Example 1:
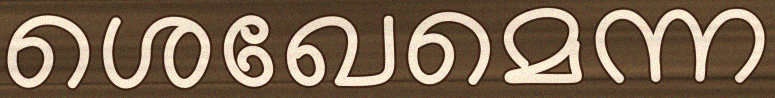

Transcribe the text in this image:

ശെഖേമെന്ന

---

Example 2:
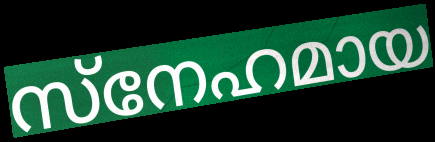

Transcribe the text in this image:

സ്നേഹമായ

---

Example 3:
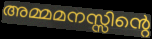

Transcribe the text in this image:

അമ്മമനസ്സിന്റെ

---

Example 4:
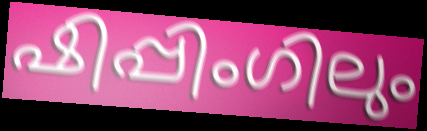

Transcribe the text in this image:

ഷിപ്പിംഗിലും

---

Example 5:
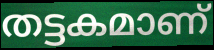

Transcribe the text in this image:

തട്ടകമാണ്